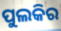
ପୁଲକିର